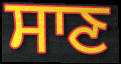
ਸਾਣ